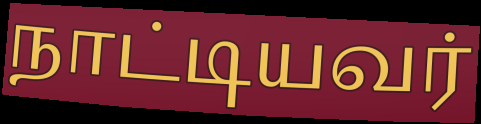
நாட்டியவர்